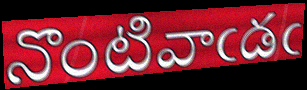
నొంటివాఁడఁ